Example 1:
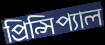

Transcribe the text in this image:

প্রিন্সিপ্যাল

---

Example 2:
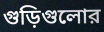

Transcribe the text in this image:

গুড়িগুলোর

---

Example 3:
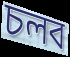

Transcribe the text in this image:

চলব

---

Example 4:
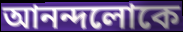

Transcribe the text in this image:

আনন্দলোকে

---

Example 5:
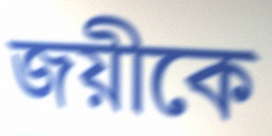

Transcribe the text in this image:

জয়ীকে